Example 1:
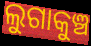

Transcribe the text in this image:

ଲୁଗାକୁଞ୍ଚ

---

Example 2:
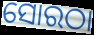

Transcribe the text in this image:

ସୋରଠା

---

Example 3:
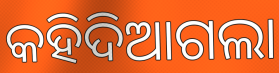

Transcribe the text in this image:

କହିଦିଆଗଲା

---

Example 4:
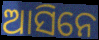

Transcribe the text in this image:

ଆସିନେ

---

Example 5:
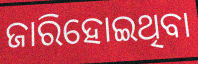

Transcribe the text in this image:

ଜାରିହୋଇଥିବା